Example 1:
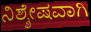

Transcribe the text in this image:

ನಿಶ್ಶೇಷವಾಗಿ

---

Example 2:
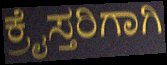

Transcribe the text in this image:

ಕ್ರೈಸ್ತರಿಗಾಗಿ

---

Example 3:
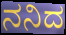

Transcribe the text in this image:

ನನಿದ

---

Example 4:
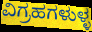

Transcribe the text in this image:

ವಿಗ್ರಹಗಳುಳ್ಳ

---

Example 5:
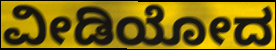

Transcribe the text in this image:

ವೀಡಿಯೋದ